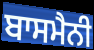
ਬਾਸਮੈਨੀ